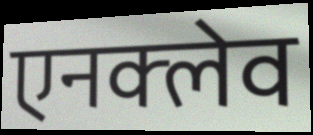
एनक्‍लेव